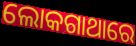
ଲୋକଗାଥାରେ